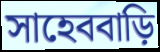
সাহেববাড়ি